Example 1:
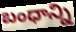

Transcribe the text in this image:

బంధాన్ని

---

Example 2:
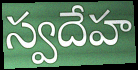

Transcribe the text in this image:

స్వదేహ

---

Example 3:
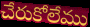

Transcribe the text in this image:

చేరుకోలేము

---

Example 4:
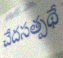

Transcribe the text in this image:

చేదసత్పథే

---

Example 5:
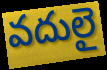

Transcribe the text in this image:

వదులై